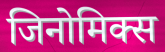
जिनोमिक्स